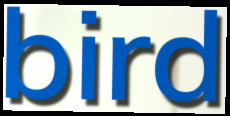
bird